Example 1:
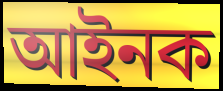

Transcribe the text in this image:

আইনক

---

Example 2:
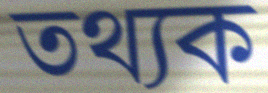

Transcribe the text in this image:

তথ্যক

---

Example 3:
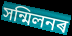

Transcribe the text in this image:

সন্মিলনৰ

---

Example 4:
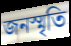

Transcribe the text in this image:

জনস্মৃতি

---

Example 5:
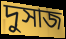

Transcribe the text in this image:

দুসাজ